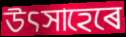
উৎসাহেৰে